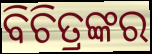
ବିଚିତ୍ରଙ୍କର